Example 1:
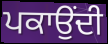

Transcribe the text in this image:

ਪਕਾਉਂਦੀ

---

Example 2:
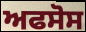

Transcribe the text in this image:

ਅਫਸੋਸ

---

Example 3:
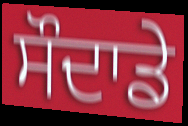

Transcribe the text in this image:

ਸੌਦਾਡੇ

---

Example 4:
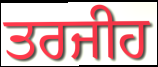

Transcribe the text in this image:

ਤਰਜੀਹ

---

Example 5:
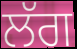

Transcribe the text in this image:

ਲੱਗ